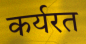
कर्यरत